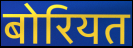
बोरियत